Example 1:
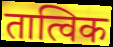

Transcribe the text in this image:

तात्विक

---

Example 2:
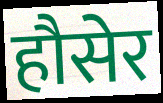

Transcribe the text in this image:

हौसेर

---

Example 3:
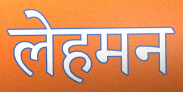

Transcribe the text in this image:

लेहमन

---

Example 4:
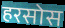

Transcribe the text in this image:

हरसोस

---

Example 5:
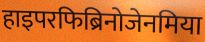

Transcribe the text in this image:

हाइपरफिब्रिनोजेनमिया